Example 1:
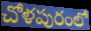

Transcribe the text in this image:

చోళపురంలో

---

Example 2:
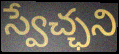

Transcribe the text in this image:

స్వేచ్ఛని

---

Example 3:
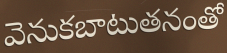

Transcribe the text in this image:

వెనుకబాటుతనంతో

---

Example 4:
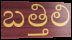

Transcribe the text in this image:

బత్తిలి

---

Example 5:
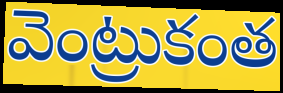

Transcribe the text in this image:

వెంట్రుకంత